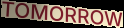
TOMORROW